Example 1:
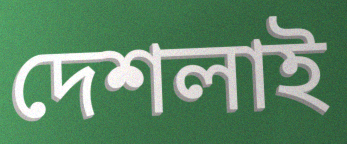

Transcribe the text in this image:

দেশলাই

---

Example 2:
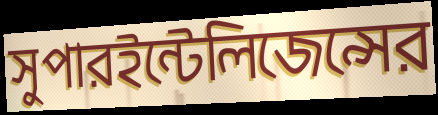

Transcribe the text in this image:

সুপারইন্টেলিজেন্সের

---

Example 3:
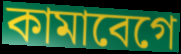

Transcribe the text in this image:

কামাবেগে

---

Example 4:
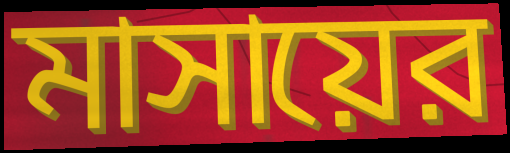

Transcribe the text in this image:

মাসায়ের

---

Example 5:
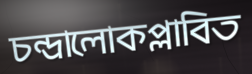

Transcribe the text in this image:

চন্দ্রালোকপ্লাবিত